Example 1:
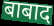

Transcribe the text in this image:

बाबाद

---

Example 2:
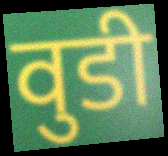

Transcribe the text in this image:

वुडी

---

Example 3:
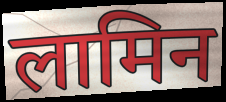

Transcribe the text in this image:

लामिन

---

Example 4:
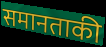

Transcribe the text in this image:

समानताकी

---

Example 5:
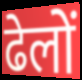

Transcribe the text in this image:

ढेलों